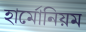
হার্মোনিয়ম